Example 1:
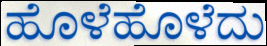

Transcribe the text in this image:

ಹೊಳೆಹೊಳೆದು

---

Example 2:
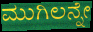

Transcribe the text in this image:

ಮುಗಿಲನ್ನೇ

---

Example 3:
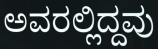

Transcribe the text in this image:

ಅವರಲ್ಲಿದ್ದವು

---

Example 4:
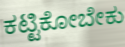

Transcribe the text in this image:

ಕಟ್ಟಿಕೋಬೇಕು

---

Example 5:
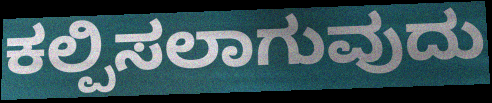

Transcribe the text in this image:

ಕಲ್ಪಿಸಲಾಗುವುದು